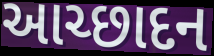
આચ્છાદન